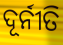
ଦୂର୍ନୀତି